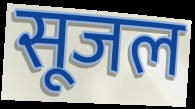
सूजल